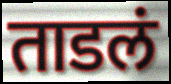
ताडलं